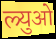
ल्युओ